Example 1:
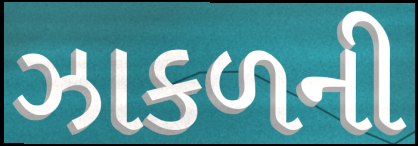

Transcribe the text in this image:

ઝાકળની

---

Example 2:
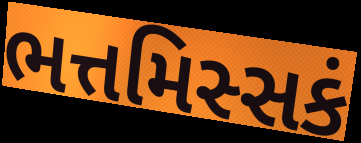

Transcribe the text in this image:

ભત્તમિસ્સકં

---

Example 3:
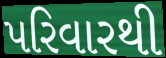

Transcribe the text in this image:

પરિવારથી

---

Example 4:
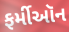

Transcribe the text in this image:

ફર્મીઑન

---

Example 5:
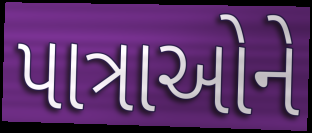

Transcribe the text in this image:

પાત્રાઓને